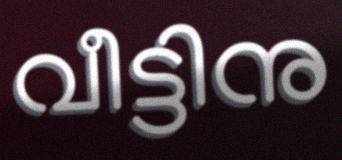
വീട്ടിനു